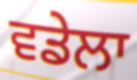
ਵਡੇਲਾ